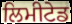
ਲਿਮੀਟੇਡ